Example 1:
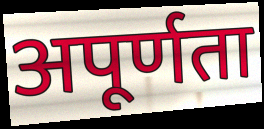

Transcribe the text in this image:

अपूर्णता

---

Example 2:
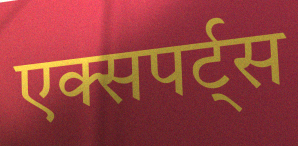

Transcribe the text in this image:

एक्सपर्ट्स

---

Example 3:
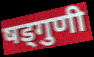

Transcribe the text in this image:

षड्गुणी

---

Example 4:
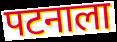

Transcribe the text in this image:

पटनाला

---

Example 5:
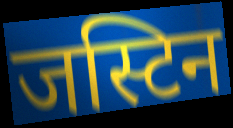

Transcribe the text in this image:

जस्टिन